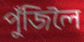
পুঁজিলৈ